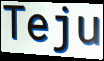
Teju